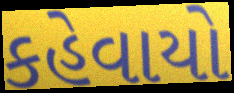
કહેવાયો